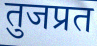
तुजप्रत